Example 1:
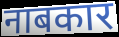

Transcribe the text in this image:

नाबकार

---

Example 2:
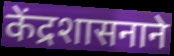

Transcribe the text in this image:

केंद्रशासनाने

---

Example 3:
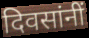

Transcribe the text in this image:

दिवसांनीं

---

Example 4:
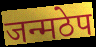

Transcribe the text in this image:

जन्मठेप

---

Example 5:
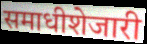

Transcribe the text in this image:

समाधीशेजारी